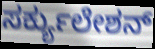
ಸರ್ಕ್ಯುಲೇಶನ್